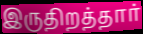
இருதிறத்தார்